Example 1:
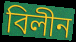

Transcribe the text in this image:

বিলীন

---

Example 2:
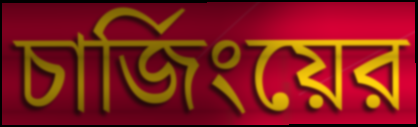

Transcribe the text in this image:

চার্জিংয়ের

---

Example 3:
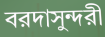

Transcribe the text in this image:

বরদাসুন্দরী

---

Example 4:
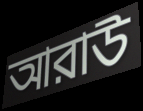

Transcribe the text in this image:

আরাউ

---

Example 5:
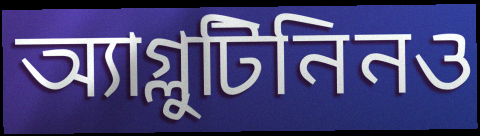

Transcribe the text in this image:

অ্যাগ্লুটিনিনও